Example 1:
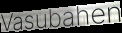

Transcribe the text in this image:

Vasubahen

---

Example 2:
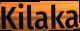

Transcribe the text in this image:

Kilaka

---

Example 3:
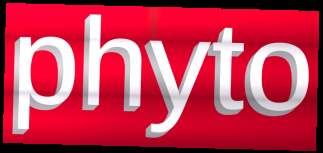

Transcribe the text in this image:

phyto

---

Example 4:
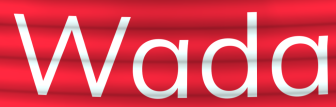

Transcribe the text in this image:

Wada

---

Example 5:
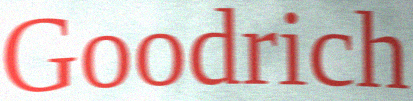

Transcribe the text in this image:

Goodrich